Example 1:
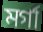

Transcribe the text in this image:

মৰ্গা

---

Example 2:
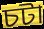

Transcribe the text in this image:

চটা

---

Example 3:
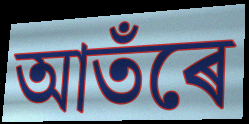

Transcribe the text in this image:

আতঁৰে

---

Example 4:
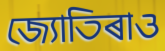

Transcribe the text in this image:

জ্যোতিৰাও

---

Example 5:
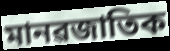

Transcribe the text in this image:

মানৱজাতিক